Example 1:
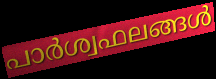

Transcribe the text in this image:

പാർശ്വഫലങ്ങൾ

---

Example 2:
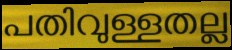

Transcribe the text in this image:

പതിവുള്ളതല്ല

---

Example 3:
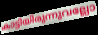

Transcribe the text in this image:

കാട്ടിയിരുന്നുവല്ലോ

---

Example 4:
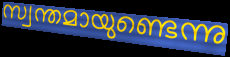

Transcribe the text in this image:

സ്വന്തമായുണ്ടെന്നു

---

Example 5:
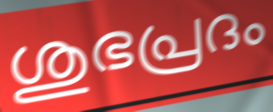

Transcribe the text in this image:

ശുഭപ്രദം